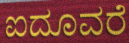
ಐದೂವರೆ